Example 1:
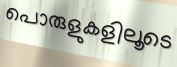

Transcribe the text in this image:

പൊരുളുകളിലൂടെ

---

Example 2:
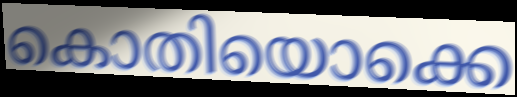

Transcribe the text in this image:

കൊതിയൊക്കെ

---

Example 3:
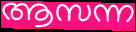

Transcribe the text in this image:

ആസന്ന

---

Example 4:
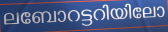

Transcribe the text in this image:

ലബോറട്ടറിയിലോ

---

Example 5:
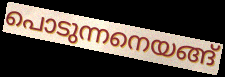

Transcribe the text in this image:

പൊടുന്നനെയങ്ങ്